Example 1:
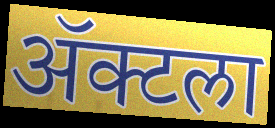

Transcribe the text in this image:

ॲक्टला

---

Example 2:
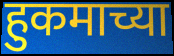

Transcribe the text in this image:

हुकमाच्या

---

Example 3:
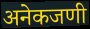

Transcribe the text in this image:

अनेकजणी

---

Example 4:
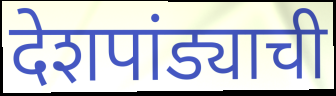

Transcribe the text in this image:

देशपांड्याची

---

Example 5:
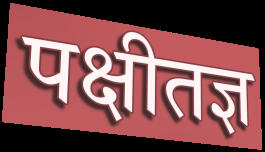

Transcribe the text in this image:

पक्षीतज्ञ